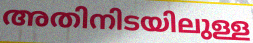
അതിനിടയിലുള്ള